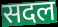
सदल